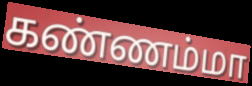
கண்ணம்மா